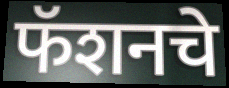
फॅशनचे